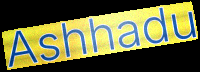
Ashhadu